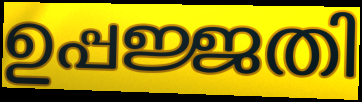
ഉപ്പജ്ജതി